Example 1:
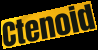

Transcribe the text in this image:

Ctenoid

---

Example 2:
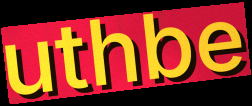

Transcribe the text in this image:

uthbe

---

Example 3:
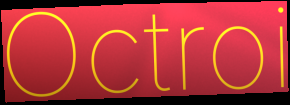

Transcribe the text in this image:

Octroi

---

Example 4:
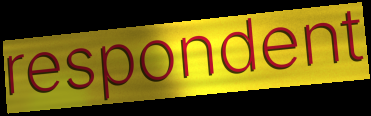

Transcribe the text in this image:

respondent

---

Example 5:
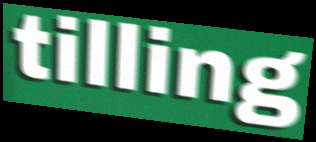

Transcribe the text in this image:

tilling